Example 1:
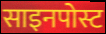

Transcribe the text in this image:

साइनपोस्ट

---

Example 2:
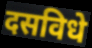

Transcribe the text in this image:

दसविधे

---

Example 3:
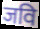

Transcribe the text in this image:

जवि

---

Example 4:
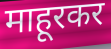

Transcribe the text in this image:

माहूरकर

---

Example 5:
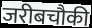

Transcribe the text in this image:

जरीबचौकी